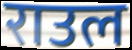
राउल